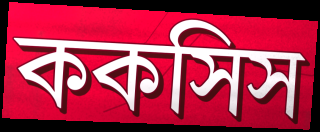
ককসিস